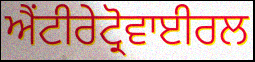
ਐਂਟੀਰੇਟ੍ਰੋਵਾਈਰਲ